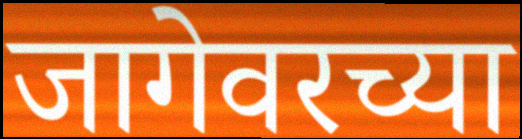
जागेवरच्या